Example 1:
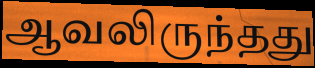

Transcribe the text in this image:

ஆவலிருந்தது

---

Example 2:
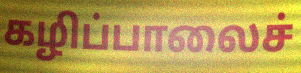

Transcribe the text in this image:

கழிப்பாலைச்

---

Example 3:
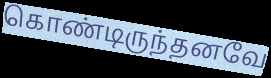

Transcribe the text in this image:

கொண்டிருந்தனவே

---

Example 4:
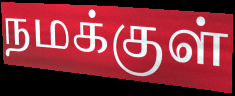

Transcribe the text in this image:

நமக்குள்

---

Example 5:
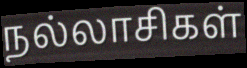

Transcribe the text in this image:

நல்லாசிகள்